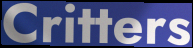
Critters